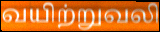
வயிற்றுவலி